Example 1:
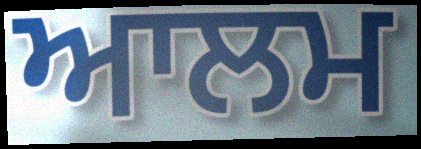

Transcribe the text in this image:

ਆਲਮ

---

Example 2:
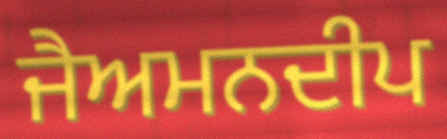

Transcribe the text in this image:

ਜੈਅਮਨਦੀਪ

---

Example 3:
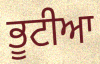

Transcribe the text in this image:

ਭੂਟੀਆ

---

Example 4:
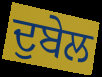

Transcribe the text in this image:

ਦੁਬੇਲ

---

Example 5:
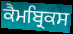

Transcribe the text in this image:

ਕੈਮਬ੍ਰਿਕਸ